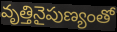
వృత్తినైపుణ్యంతో